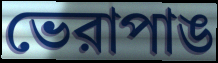
ভেরাপাঙ